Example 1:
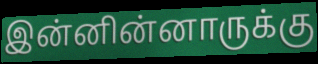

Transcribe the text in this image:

இன்னின்னாருக்கு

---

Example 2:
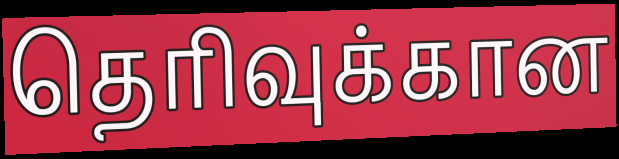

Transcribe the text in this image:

தெரிவுக்கான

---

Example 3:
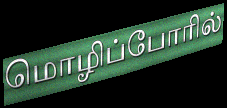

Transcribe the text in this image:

மொழிப்போரில்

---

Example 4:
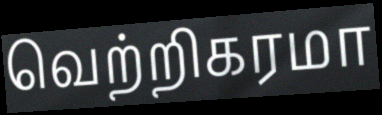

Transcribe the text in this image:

வெற்றிகரமா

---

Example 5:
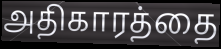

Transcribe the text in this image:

அதிகாரத்தை